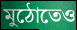
মুঠোতেও